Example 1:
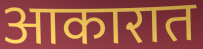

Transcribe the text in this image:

आकारात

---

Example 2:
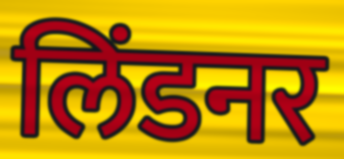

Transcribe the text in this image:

लिंडनर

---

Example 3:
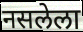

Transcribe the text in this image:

नसलेला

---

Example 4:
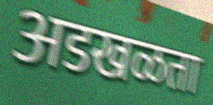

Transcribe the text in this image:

अडखळता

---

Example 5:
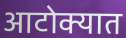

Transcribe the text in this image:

आटोक्यात